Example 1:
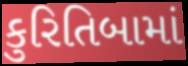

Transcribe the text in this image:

કુરિતિબામાં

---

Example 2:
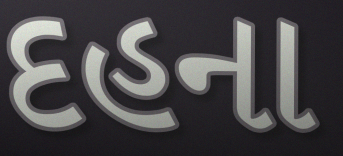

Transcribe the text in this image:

દહના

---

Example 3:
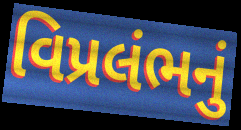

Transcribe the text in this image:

વિપ્રલંભનું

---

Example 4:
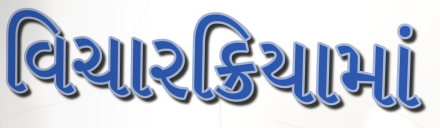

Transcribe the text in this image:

વિચારક્રિયામાં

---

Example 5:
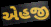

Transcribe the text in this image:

એહજી